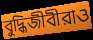
বুদ্ধিজীবীরাও